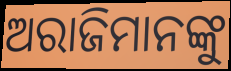
ଅରାଜିମାନଙ୍କୁ